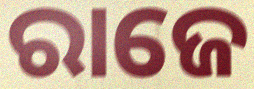
ରାଜେ